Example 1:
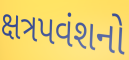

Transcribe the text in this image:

ક્ષત્રપવંશનો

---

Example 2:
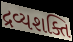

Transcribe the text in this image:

દ્રવ્યશક્તિ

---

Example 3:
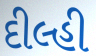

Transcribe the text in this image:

દીલ્હી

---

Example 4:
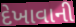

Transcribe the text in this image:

દેખાવાની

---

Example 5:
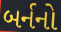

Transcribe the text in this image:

બર્નનો